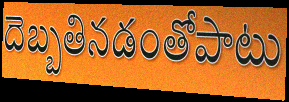
దెబ్బతినడంతోపాటు